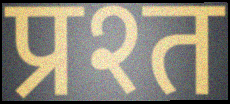
प्रश्त